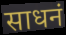
साधनं